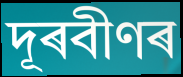
দূৰবীণৰ